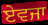
ਏਵਜਾ